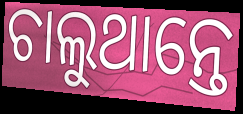
ଚାଲୁଥାନ୍ତେ